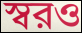
স্বরও